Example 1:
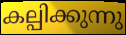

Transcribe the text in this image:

കല്പിക്കുന്നു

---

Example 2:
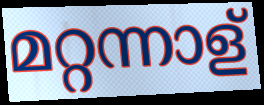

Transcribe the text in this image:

മറ്റന്നാള്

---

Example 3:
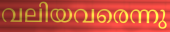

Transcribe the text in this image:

വലിയവരെന്നു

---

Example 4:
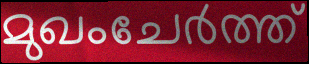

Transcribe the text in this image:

മുഖംചേർത്ത്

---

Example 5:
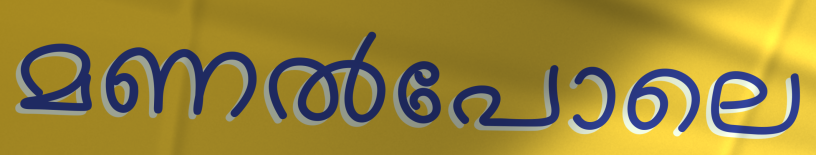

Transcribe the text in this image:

മണൽപോലെ